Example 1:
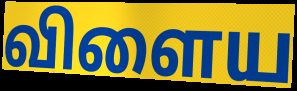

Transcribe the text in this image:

விளைய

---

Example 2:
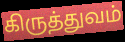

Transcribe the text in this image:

கிருத்துவம்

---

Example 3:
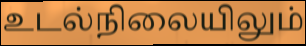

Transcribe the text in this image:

உடல்நிலையிலும்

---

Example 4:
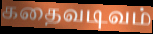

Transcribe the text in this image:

கதைவடிவம்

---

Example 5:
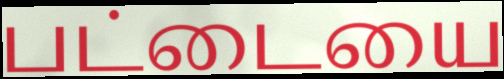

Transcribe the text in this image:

பட்டையை